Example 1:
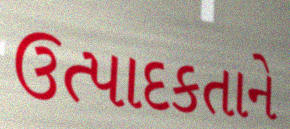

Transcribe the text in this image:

ઉત્પાદકતાને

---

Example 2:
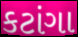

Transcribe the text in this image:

કટાંગા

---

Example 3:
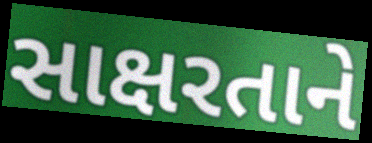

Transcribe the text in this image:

સાક્ષરતાને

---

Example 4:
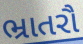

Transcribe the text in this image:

ભ્રાતરૌ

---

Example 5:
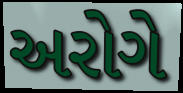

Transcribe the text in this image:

અરોગે